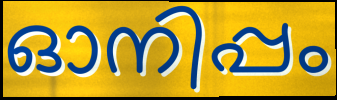
ഓനിപ്പം